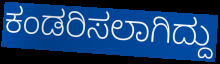
ಕಂಡರಿಸಲಾಗಿದ್ದು